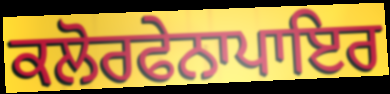
ਕਲੋਰਫੇਨਾਪਾਇਰ